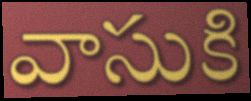
వాసుకి